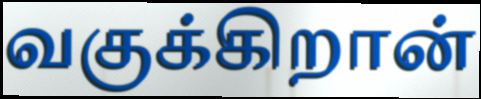
வகுக்கிறான்